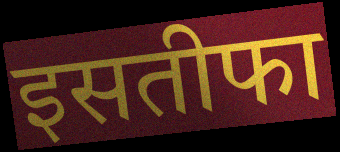
इसतीफा